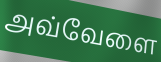
அவ்வேளை